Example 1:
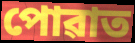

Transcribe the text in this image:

পোৱাত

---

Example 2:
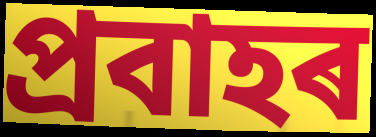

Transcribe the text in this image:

প্ৰবাহৰ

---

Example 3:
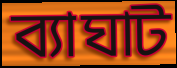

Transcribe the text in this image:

ব্যাঘাট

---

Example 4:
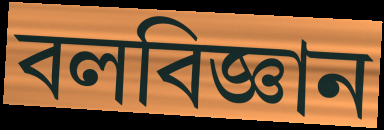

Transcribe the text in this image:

বলবিজ্ঞান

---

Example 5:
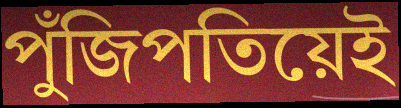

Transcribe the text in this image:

পুঁজিপতিয়েই